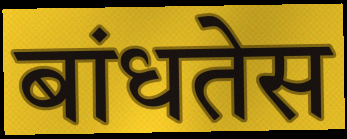
बांधतेस